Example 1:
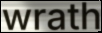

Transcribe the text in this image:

wrath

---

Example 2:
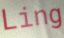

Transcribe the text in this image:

Ling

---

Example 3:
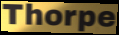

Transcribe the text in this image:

Thorpe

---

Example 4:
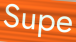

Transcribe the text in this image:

Supe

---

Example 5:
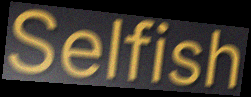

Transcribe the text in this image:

Selfish